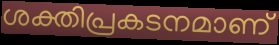
ശക്തിപ്രകടനമാണ്